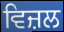
ਵਿਜ਼ਲ